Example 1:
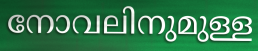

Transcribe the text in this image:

നോവലിനുമുള്ള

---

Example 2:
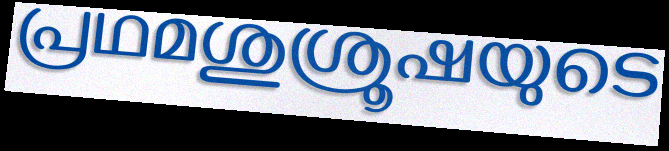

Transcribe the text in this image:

പ്രഥമശുശ്രൂഷയുടെ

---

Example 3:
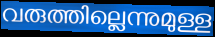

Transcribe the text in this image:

വരുത്തില്ലെന്നുമുള്ള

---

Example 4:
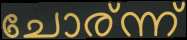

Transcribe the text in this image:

ചോര്ന്ന്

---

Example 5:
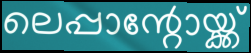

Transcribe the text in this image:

ലെപ്പാന്റോയ്ക്ക്